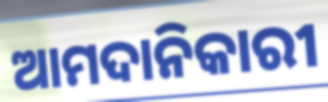
ଆମଦାନିକାରୀ